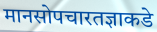
मानसोपचारतज्ञाकडे